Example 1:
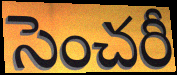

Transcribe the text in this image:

సెంచరీ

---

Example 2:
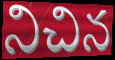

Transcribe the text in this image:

నిచిన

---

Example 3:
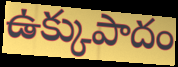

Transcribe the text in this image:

ఉక్కుపాదం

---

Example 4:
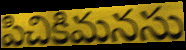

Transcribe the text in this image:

పిచికిమనసు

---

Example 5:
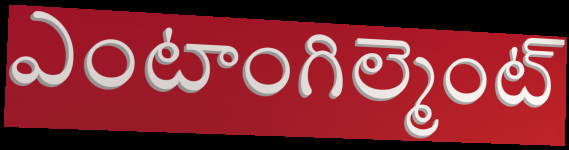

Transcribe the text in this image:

ఎంటాంగిల్మెంట్